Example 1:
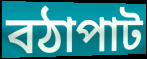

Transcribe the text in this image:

বঠাপাট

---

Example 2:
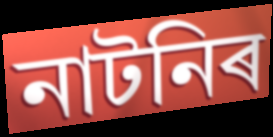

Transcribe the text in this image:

নাটনিৰ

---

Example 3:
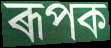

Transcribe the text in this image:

ৰূপক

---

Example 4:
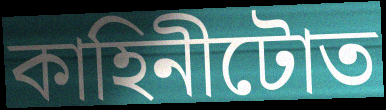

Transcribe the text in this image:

কাহিনীটোত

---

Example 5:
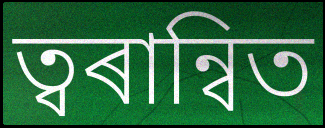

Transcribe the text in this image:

ত্বৰান্বিত